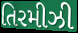
તિરમીઝી